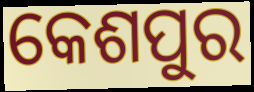
କେଶପୁର